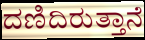
ದಣಿದಿರುತ್ತಾನೆ